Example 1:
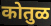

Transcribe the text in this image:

कोतुळ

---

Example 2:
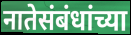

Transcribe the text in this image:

नातेसंबंधांच्या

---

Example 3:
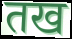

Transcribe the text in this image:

तख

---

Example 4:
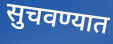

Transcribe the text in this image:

सुचवण्यात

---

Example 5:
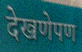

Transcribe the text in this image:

देखणेपण